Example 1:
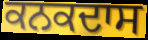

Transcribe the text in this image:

ਕਨਕਦਾਸ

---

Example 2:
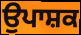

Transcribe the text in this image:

ਉਪਾਸ਼ਕ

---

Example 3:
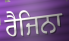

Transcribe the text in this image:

ਰੈਜਿਨਾ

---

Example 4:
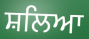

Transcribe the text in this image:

ਸ਼ਲਿਆ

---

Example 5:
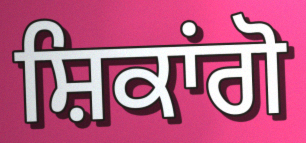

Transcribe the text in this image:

ਸ਼ਿਕਾਂਗੋ